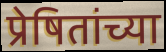
प्रेषितांच्या